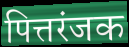
पित्तरंजक